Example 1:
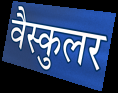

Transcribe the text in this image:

वैस्कुलर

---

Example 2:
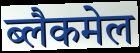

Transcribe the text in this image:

ब्लैकमेल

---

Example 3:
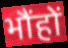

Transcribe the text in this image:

भौंहों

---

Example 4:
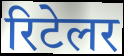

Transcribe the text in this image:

रिटेलर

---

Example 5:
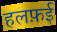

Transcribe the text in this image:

हलफ़ई